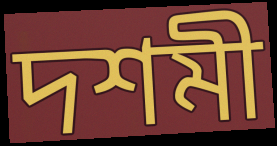
দশমী